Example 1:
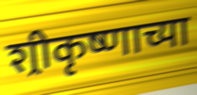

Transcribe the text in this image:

श्रीकृष्णाच्या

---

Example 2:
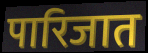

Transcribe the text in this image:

पारिजात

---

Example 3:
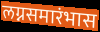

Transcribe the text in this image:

लग्नसमारंभास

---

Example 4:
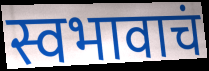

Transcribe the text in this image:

स्वभावाचं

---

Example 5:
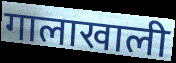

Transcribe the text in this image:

गालाखाली